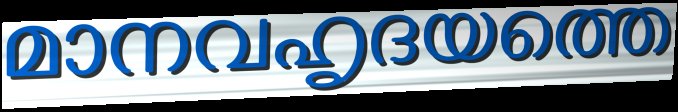
മാനവഹൃദയത്തെ